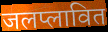
जलप्लावित